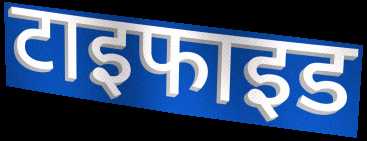
टाइफाइड